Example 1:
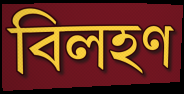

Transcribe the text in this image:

বিলহণ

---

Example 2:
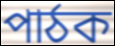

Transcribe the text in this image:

পাঠক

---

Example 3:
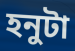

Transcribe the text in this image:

হনুটা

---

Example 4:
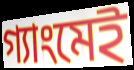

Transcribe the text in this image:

গ্যাংমেই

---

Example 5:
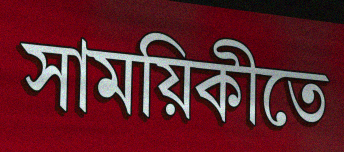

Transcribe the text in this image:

সাময়িকীতে